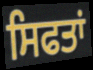
ਸਿਫਤਾਂ